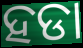
ହଡା